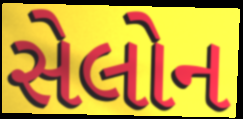
સેલોન